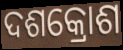
ଦଶକ୍ରୋଶ